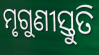
ମୃଗୁଣୀସ୍ତୁତି